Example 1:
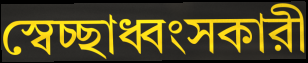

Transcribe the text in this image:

স্বেচ্ছাধ্বংসকারী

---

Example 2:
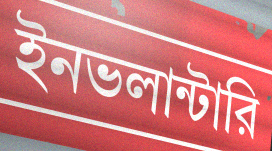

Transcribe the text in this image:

ইনভলান্টারি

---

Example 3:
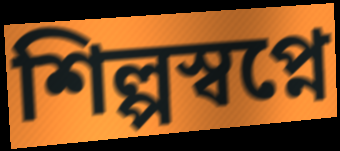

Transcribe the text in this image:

শিল্পস্বপ্নে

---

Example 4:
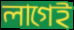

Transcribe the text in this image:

লাগেই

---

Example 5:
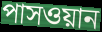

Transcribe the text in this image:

পাসওয়ান